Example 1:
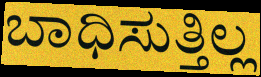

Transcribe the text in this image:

ಬಾಧಿಸುತ್ತಿಲ್ಲ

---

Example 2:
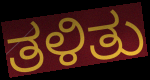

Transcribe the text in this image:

ತಳಿತು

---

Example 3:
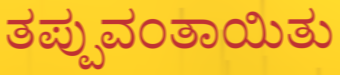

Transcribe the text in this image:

ತಪ್ಪುವಂತಾಯಿತು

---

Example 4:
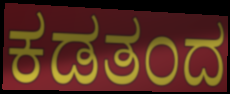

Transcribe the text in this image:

ಕಡತಂದ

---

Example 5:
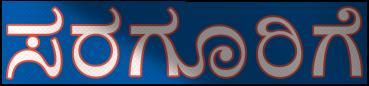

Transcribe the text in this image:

ಸರಗೂರಿಗೆ